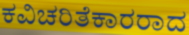
ಕವಿಚರಿತೆಕಾರರಾದ